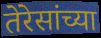
तेरेसांच्या